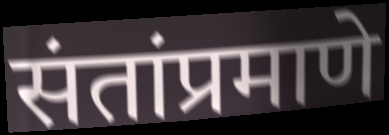
संतांप्रमाणे